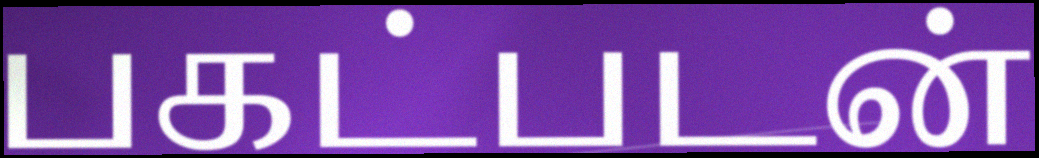
பகட்படன்